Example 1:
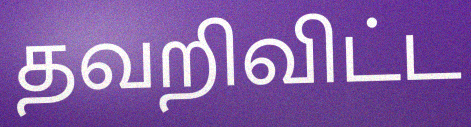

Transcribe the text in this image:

தவறிவிட்ட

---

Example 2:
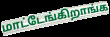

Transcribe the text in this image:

மாட்டேங்கிறாங்க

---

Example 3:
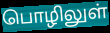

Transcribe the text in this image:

பொழிலுள்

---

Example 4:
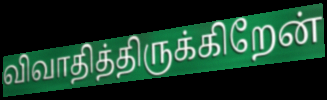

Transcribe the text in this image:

விவாதித்திருக்கிறேன்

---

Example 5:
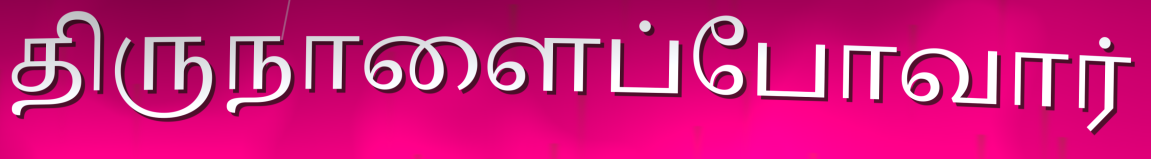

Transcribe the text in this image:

திருநாளைப்போவார்